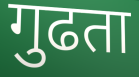
गुढता